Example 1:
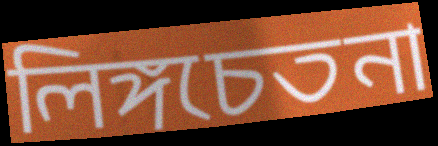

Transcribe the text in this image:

লিঙ্গচেতনা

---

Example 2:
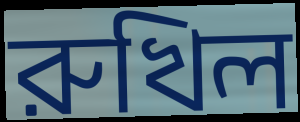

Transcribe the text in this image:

রুখিল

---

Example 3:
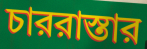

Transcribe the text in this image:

চাররাস্তার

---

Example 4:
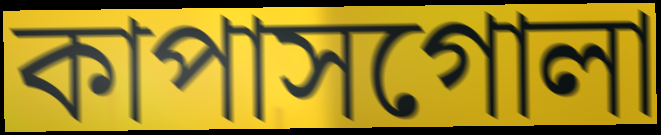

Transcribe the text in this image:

কাপাসগোলা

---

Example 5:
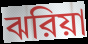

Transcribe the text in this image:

ঝরিয়া